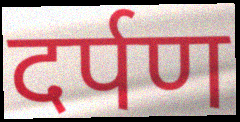
दर्पण